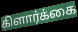
கிளார்க்கை